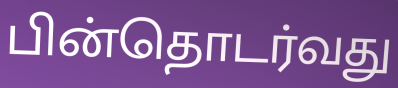
பின்தொடர்வது